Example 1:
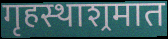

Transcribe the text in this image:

गृहस्थाश्रमात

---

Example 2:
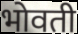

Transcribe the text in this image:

भोवती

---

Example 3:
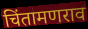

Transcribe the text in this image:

चिंतामणराव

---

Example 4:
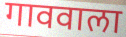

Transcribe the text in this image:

गाववाला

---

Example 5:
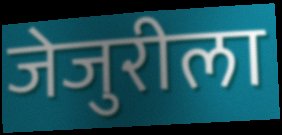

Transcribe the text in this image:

जेजुरीला